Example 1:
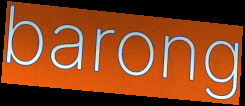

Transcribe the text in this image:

barong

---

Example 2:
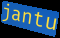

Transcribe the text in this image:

jantu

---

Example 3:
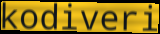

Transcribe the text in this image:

kodiveri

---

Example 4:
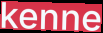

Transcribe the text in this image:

kenne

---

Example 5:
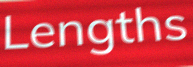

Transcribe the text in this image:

Lengths